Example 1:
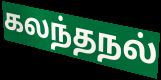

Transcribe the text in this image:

கலந்தநல்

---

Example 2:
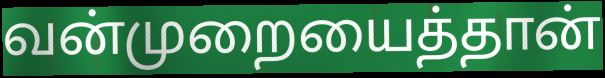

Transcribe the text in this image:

வன்முறையைத்தான்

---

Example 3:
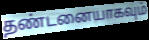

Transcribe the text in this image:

தண்டனையாகவும்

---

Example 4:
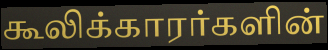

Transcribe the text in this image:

கூலிக்காரர்களின்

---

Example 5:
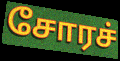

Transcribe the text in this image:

சோரச்